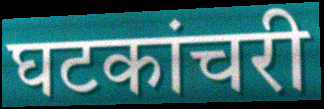
घटकांचरी